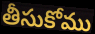
తీసుకోము